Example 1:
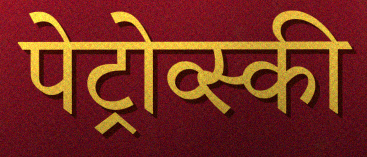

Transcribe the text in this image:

पेट्रोव्स्की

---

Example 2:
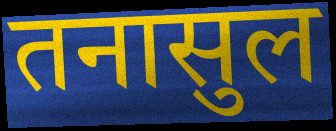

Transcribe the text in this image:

तनासुल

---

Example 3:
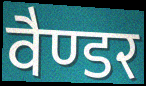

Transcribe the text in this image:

वैण्डर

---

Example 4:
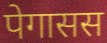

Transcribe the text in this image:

पेगासस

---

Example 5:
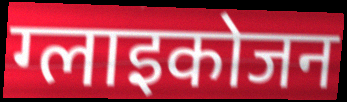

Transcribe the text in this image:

ग्लाइकोजन